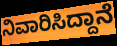
ನಿವಾರಿಸಿದ್ದಾನೆ